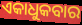
ଏକାଧୁକବାର